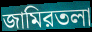
জামিরতলা